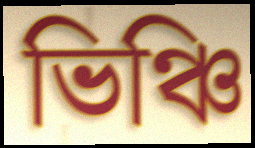
ভিঞ্চি